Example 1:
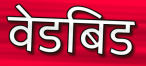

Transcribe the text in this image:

वेडबिड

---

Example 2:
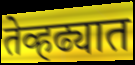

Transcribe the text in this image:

तेव्हढ्यात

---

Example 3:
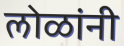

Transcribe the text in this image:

लोळांनी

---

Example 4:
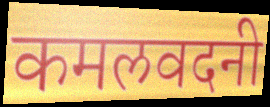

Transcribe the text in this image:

कमलवदनी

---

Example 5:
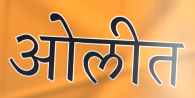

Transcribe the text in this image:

ओलीत